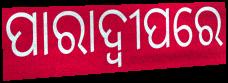
ପାରାଦ୍ବୀପରେ